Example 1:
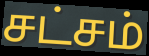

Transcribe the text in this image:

சட்சம்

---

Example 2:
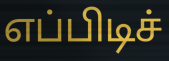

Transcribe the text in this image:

எப்பிடிச்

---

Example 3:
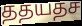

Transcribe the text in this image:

ததயதச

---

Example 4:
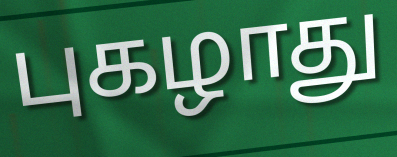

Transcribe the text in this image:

புகழாது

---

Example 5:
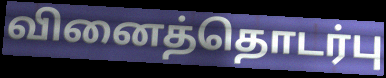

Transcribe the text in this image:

வினைத்தொடர்பு